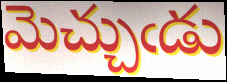
మెచ్చుఁడు